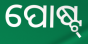
ପୋଷ୍ଟ୍